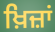
ਖ਼ਿਜ਼ਾਂ